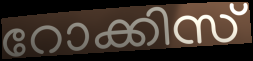
റോക്കിസ്